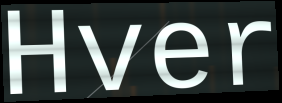
Hver